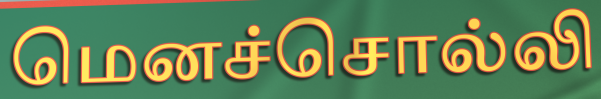
மெனச்சொல்லி